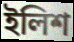
ইলিশ